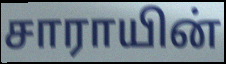
சாராயின்